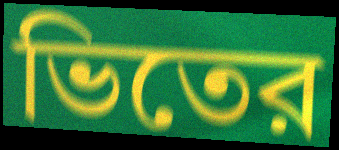
ভিতের